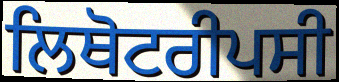
ਲਿਥੋਟਰੀਪਸੀ